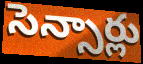
సెన్సార్లు